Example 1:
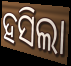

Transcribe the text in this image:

ହସିଲା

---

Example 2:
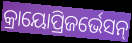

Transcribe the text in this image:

କ୍ରାୟୋପ୍ରିଜର୍ଭେସନ୍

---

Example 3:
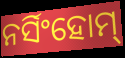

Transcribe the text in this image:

ନର୍ସିଂହୋମ୍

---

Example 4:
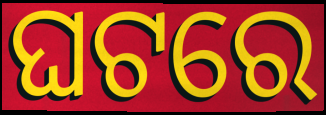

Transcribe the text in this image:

ଘଟରେ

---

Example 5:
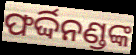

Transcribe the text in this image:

ଫର୍ଦ୍ଦିନଣ୍ଡଙ୍କ